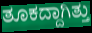
ತೂಕದ್ದಾಗಿತ್ತು